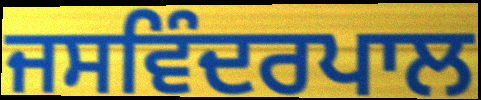
ਜਸਵਿੰਦਰਪਾਲ